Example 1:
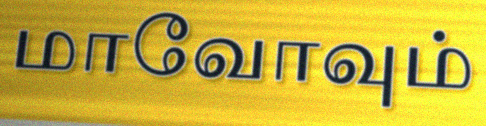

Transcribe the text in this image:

மாவோவும்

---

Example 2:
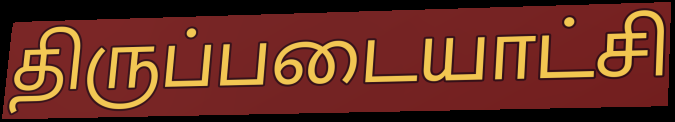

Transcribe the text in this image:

திருப்படையாட்சி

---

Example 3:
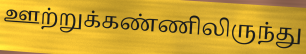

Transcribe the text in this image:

ஊற்றுக்கண்ணிலிருந்து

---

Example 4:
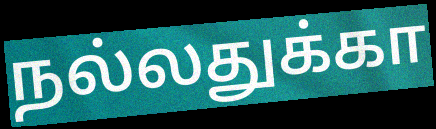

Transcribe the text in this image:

நல்லதுக்கா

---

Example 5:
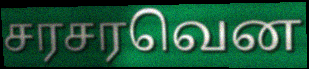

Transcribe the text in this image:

சரசரவென